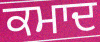
ਕਮਾਦ